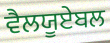
ਵੈਲਯੂਏਬਲ